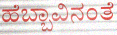
ಹೆಬ್ಬಾವಿನಂತೆ